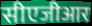
सीएजीआर